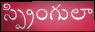
స్ప్రింగులా